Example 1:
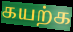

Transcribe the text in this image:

கயற்க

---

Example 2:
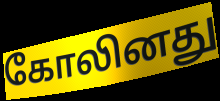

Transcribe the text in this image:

கோலினது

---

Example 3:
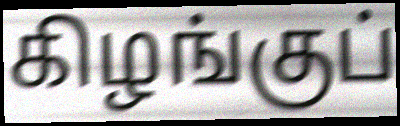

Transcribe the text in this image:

கிழங்குப்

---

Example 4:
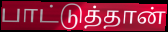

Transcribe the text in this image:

பாட்டுத்தான்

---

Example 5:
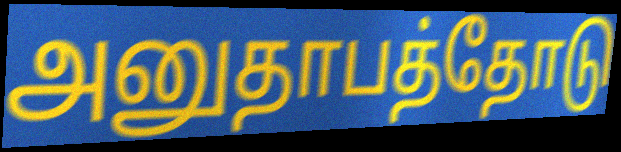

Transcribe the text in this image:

அனுதாபத்தோடு